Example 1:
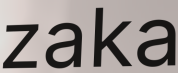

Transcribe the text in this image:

zaka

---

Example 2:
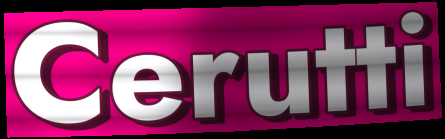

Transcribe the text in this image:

Cerutti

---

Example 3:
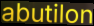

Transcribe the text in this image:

abutilon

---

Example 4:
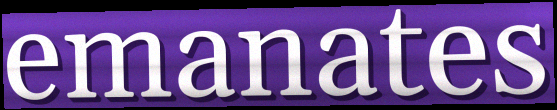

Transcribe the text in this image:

emanates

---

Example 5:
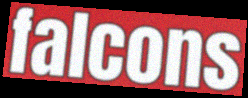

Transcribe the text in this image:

falcons